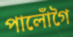
পালোঁগৈ